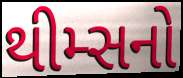
થીમ્સનો